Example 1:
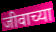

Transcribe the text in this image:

जीवाच्या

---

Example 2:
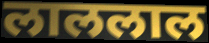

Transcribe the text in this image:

लाललाल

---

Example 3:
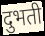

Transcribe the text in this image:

दुभती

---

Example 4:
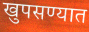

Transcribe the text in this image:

खुपसण्यात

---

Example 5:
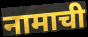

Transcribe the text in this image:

नामाची